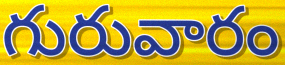
గురువారం